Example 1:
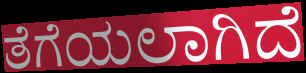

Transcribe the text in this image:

ತೆಗೆಯಲಾಗಿದೆ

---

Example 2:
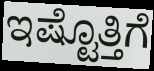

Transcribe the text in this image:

ಇಷ್ಟೊತ್ತಿಗೆ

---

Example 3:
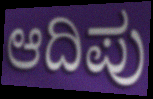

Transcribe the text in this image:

ಆದಿಪು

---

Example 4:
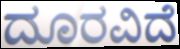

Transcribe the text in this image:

ದೂರವಿದೆ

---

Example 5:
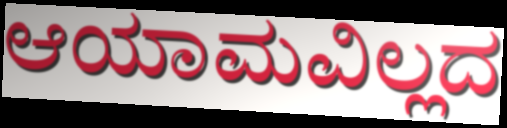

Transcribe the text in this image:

ಆಯಾಮವಿಲ್ಲದ